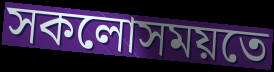
সকলোসময়তে